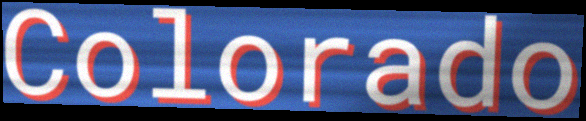
Colorado